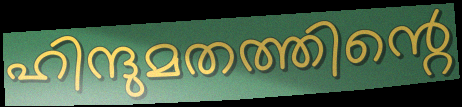
ഹിന്ദുമതത്തിന്റെ